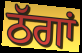
ਠੱਗਾਂ